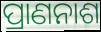
ପ୍ରାଣନାଶ